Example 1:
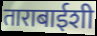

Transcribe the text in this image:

ताराबाईशी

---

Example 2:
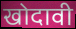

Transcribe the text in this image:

खोदावी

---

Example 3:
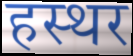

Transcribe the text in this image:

हस्थर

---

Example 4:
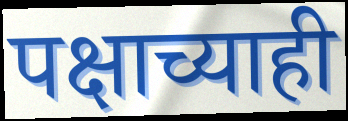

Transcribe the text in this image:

पक्षाच्याही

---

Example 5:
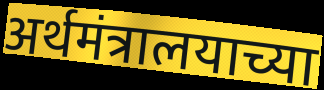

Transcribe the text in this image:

अर्थमंत्रालयाच्या